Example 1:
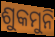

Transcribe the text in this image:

ଶୁକମୁନି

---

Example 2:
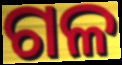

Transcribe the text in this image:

ଗଳ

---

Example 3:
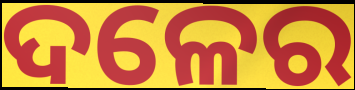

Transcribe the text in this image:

ଦଳେର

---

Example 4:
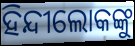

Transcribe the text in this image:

ହିନ୍ଦୀଲୋକଙ୍କୁ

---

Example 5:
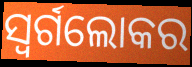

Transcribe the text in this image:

ସ୍ୱର୍ଗଲୋକର